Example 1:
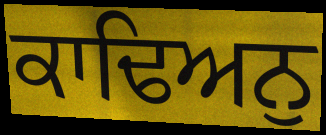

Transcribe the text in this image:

ਕਾਢਿਅਨੁ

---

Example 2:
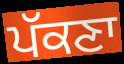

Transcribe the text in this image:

ਪੱਕਣਾ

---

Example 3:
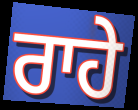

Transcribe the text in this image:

ਰਾਹੇ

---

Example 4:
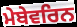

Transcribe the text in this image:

ਮੇਬੇਵਰਿਨ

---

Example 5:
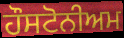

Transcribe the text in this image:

ਹੌਸਟੋਨੀਅਮ